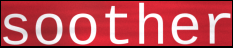
soother